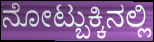
ನೋಟ್ಬುಕ್ಕಿನಲ್ಲಿ